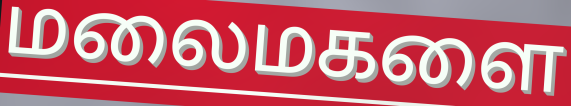
மலைமகளை